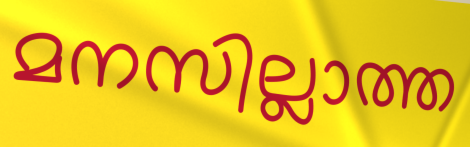
മനസില്ലാത്ത